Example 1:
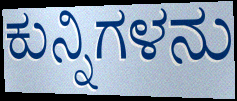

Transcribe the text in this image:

ಕುನ್ನಿಗಳನು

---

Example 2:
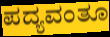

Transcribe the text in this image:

ಪದ್ಯವಂತೂ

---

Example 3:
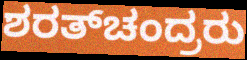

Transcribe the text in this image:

ಶರತ್‌ಚಂದ್ರರು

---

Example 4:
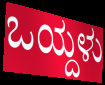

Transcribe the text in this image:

ಒಯ್ದಳು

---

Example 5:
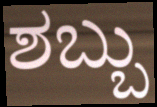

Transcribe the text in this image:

ಶಬ್ಬು